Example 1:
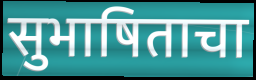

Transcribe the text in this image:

सुभाषिताचा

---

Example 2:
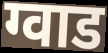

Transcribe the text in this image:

ग्वाड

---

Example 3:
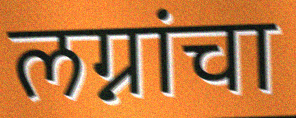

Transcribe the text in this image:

लग्नांचा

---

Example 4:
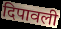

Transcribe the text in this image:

दिपावली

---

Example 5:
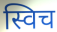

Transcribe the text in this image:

स्विच